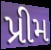
પ્રીમ